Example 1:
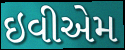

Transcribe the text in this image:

ઇવીએમ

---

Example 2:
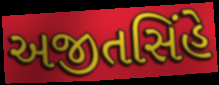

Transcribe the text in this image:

અજીતસિંહે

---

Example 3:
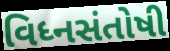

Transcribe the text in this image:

વિધ્નસંતોષી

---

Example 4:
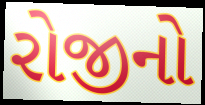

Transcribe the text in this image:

રોજીનો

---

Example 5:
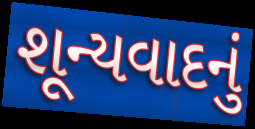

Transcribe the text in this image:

શૂન્યવાદનું